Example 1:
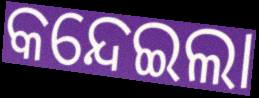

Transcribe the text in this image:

କନ୍ଦେଇଲା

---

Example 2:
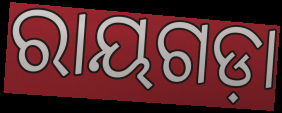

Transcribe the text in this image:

ରାୟଗଡ଼ା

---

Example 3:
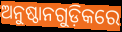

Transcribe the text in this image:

ଅନୁଷ୍ଠାନଗୁଡ଼ିକରେ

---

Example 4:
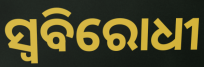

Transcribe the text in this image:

ସ୍ୱବିରୋଧୀ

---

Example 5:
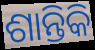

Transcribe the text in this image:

ଶାନ୍ତିକି